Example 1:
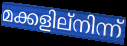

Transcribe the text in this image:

മക്കളില്നിന്ന്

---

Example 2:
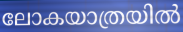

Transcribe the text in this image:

ലോകയാത്രയിൽ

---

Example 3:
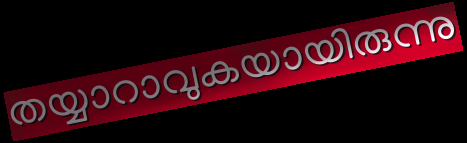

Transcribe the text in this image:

തയ്യാറാവുകയായിരുന്നു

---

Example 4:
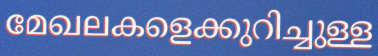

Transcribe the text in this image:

മേഖലകളെക്കുറിച്ചുള്ള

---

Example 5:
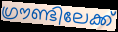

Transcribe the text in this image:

ഗ്രൗണ്ടിലേക്ക്